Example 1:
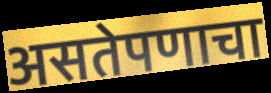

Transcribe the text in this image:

असतेपणाचा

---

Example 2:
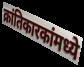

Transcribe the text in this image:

क्रांतिकारकांमध्ये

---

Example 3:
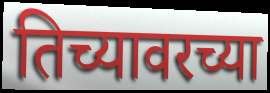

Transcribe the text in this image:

तिच्यावरच्या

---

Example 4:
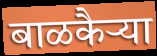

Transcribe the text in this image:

बाळकैऱ्या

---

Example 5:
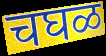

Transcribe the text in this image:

चघळ